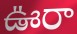
ఊరా